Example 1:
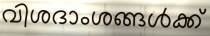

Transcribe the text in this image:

വിശദാംശങ്ങൾക്ക്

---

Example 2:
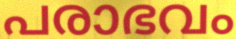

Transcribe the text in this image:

പരാഭവം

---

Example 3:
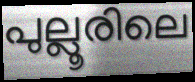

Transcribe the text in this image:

പുല്ലൂരിലെ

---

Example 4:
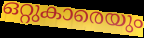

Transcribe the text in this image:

ഒറ്റുകാരെയും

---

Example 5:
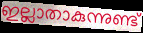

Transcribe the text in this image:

ഇല്ലാതാകുന്നുണ്ട്